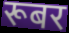
रूबर